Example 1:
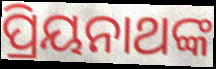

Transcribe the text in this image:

ପ୍ରିୟନାଥଙ୍କ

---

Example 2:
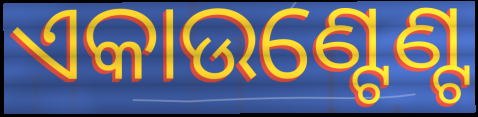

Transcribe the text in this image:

ଏକାଉଣ୍ଟେଣ୍ଟ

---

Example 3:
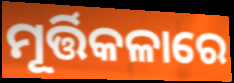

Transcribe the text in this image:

ମୂର୍ତ୍ତିକଳାରେ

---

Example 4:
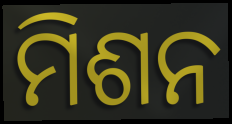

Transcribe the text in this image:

ମିଶନ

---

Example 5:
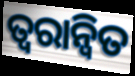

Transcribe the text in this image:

ତ୍ୱରାନ୍ୱିତ